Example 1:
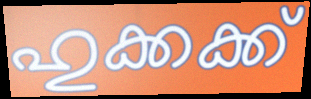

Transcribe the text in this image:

ഹുക്കക്ക്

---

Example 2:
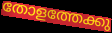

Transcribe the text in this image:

തോളത്തേക്കു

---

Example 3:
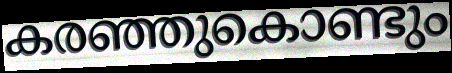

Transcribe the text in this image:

കരഞ്ഞുകൊണ്ടും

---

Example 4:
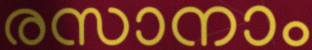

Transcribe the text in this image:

രസാനാം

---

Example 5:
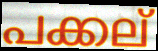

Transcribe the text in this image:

പക്കല്